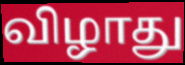
விழாது